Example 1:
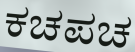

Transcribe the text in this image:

ಕಚಪಚ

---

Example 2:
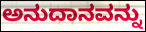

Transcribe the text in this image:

ಅನುದಾನವನ್ನು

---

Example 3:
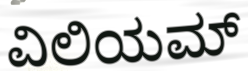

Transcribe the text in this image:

ವಿಲಿಯಮ್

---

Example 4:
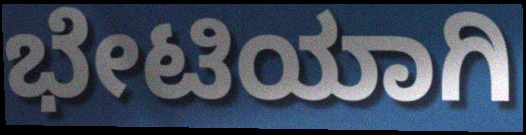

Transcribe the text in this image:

ಭೇಟಿಯಾಗಿ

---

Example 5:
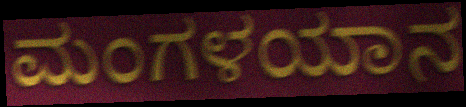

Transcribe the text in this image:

ಮಂಗಳಯಾನ